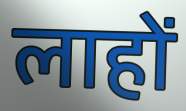
लाहों